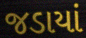
જડાયાં